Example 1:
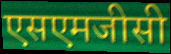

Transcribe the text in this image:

एसएमजीसी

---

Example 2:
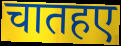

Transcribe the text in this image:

चातहए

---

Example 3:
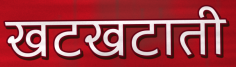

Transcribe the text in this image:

खटखटाती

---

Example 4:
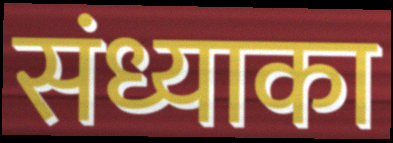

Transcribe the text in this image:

संध्याका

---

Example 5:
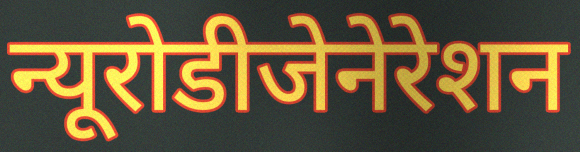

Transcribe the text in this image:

न्यूरोडीजेनेरेशन